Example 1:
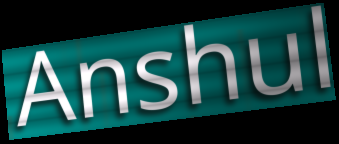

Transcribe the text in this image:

Anshul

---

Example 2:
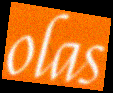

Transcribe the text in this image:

olas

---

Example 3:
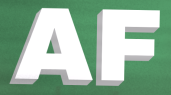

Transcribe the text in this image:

AF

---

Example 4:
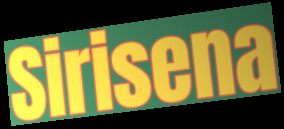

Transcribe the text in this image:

Sirisena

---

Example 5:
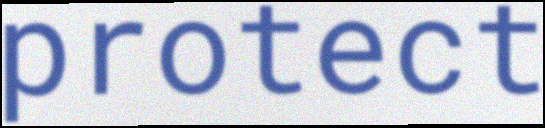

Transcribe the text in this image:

protect